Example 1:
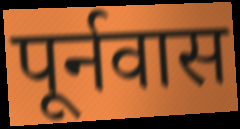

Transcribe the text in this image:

पूर्नवास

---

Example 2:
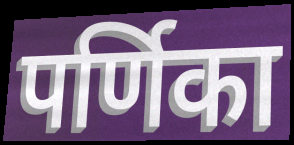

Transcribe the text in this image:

पर्णिका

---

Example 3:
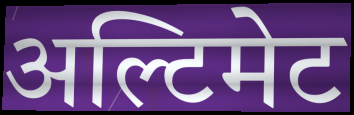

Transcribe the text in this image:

अल्टिमेट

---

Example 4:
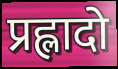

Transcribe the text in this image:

प्रह्लादो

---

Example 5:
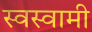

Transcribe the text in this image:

स्वस्वामी